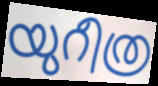
യുറീത്ര